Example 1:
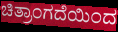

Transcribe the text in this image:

ಚಿತ್ರಾಂಗದೆಯಿಂದ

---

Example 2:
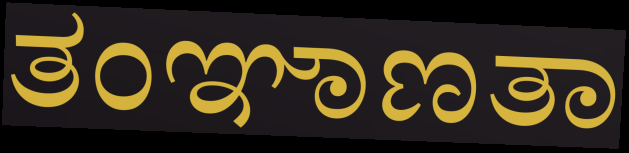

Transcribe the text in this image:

ತಂಞಾಣತಾ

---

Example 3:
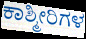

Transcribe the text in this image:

ಕಾಶ್ಮೀರಿಗಳ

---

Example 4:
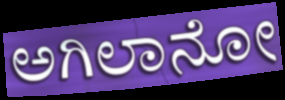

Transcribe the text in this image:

ಅಗಿಲಾನೋ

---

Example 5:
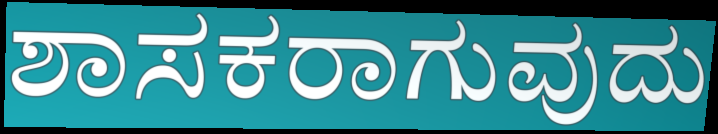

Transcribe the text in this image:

ಶಾಸಕರಾಗುವುದು